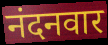
नंदनवार